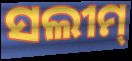
ସଲୀମ୍